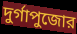
দুর্গাপুজোর